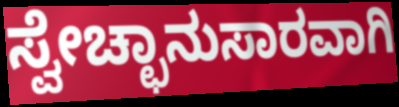
ಸ್ವೇಚ್ಛಾನುಸಾರವಾಗಿ